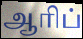
ஆரிப்